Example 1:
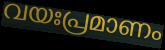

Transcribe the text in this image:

വയഃപ്രമാണം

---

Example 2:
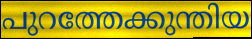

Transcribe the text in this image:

പുറത്തേക്കുന്തിയ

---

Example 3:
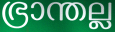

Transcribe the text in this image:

ഭ്രാന്തല്ല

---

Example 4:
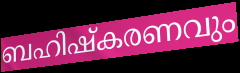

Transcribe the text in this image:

ബഹിഷ്കരണവും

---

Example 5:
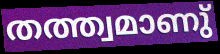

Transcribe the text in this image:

തത്ത്വമാണു്